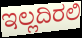
ಇಲ್ಲದಿರಲಿ